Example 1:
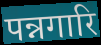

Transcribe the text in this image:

पन्नगारि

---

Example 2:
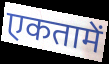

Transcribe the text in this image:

एकतामें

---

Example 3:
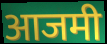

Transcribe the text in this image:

आजमी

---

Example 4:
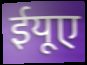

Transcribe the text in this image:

ईयूए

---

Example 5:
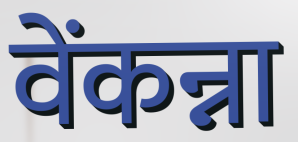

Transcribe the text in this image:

वेंकन्ना